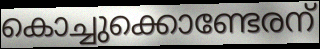
കൊച്ചുക്കൊണ്ടേരന്